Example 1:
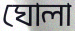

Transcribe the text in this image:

ঘোলা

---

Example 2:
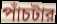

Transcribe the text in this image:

পাঁচটার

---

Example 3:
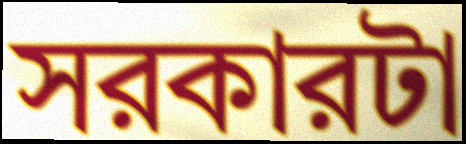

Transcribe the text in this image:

সরকারটা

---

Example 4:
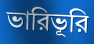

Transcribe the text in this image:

ভারিভূরি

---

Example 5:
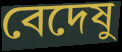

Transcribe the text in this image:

বেদেষু